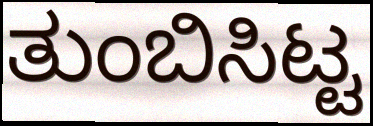
ತುಂಬಿಸಿಟ್ಟ